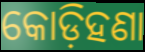
କୋଡ଼ିହଣା